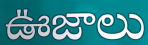
ఊజాలు